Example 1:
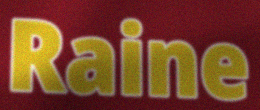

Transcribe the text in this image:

Raine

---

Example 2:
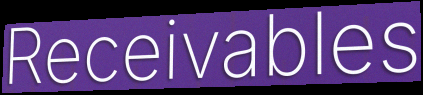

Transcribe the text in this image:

Receivables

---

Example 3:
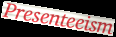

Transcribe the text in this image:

Presenteeism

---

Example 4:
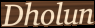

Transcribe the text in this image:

Dholun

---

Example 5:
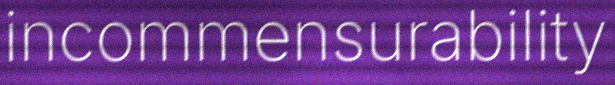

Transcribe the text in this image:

incommensurability